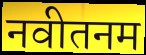
नवीतनम